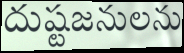
దుష్టజనులను